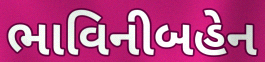
ભાવિનીબહેન